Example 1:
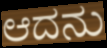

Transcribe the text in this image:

ಆದನು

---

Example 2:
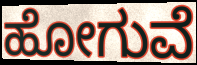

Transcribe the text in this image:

ಹೋಗುವೆ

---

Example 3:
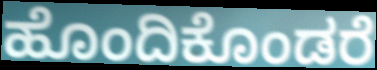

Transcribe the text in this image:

ಹೊಂದಿಕೊಂಡರೆ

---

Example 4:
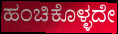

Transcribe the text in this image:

ಹಂಚಿಕೊಳ್ಳದೇ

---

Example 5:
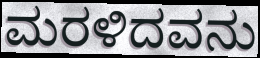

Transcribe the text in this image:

ಮರಳಿದವನು